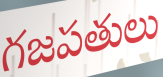
గజపతులు